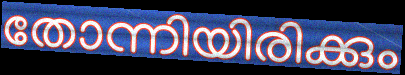
തോന്നിയിരിക്കും